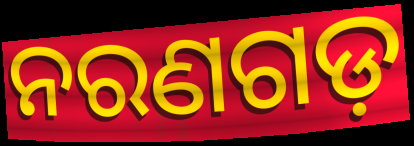
ନରଣଗଡ଼